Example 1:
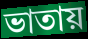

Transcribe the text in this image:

ভাতায়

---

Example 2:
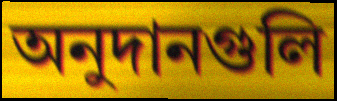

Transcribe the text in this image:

অনুদানগুলি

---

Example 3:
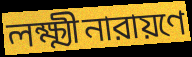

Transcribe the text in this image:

লক্ষ্মীনারায়ণে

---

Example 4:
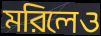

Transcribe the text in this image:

মরিলেও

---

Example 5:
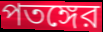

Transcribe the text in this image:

পতঙ্গের